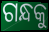
ଗନ୍ଧକୁ